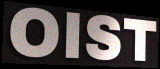
OIST